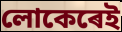
লোকেৰেই